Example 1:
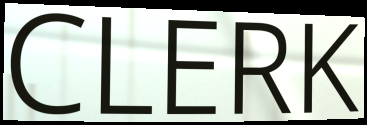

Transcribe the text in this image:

CLERK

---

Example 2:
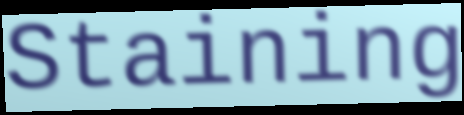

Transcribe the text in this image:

Staining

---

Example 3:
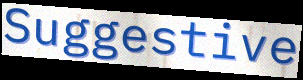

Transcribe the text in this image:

Suggestive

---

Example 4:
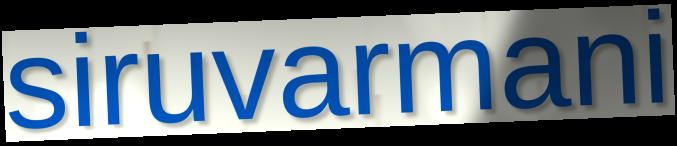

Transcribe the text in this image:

siruvarmani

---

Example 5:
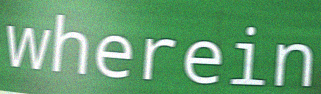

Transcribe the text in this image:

wherein